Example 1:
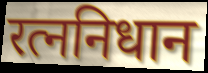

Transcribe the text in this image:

रत्ननिधान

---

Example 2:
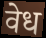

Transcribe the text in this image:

वेध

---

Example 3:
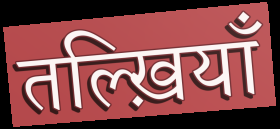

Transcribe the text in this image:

तल्ख़ियाँ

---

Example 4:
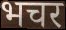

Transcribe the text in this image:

भचर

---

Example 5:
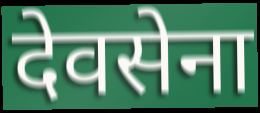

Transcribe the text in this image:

देवसेना